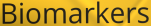
Biomarkers